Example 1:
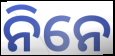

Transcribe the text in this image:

ନିନେ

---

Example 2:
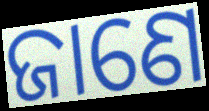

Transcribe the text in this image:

ଜାଣେ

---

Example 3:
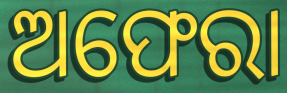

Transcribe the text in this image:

ଅଫେରା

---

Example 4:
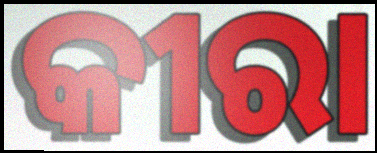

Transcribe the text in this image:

କୀରା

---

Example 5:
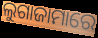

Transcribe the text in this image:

ଲୁଗାଜାମାରେ